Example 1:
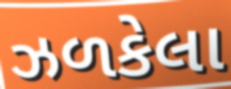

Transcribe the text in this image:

ઝળકેલા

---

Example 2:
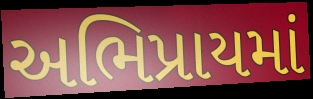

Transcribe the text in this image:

અભિપ્રાયમાં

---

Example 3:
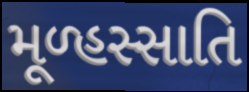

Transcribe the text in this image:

મૂળ્હસ્સાતિ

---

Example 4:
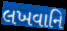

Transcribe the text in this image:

લખવાનિ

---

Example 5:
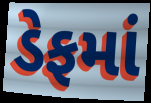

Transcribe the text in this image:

ડેફમાં